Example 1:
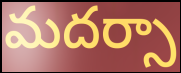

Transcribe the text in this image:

మదర్సా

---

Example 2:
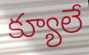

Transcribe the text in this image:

క్యూలే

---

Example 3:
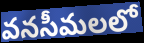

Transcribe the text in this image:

వనసీమలలో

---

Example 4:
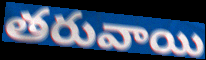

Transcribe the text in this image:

తరువాయి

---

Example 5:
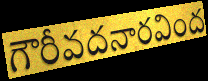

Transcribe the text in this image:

గౌరీవదనారవింద